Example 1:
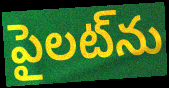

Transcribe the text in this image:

పైలట్‌ను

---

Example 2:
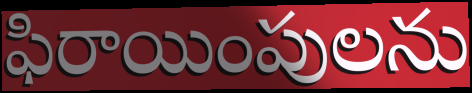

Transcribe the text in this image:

ఫిరాయింపులను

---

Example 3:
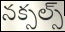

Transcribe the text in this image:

నక్సల్స్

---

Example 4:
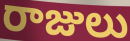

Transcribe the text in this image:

రాజులు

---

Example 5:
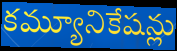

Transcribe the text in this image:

కమ్యూనికేషన్లు